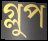
গ্লুপ